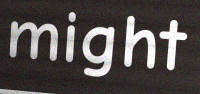
might